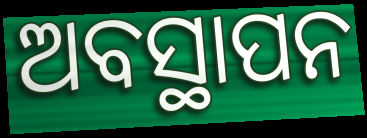
ଅବସ୍ଥାପନ